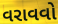
વરાવવો